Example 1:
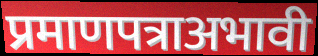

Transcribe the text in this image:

प्रमाणपत्राअभावी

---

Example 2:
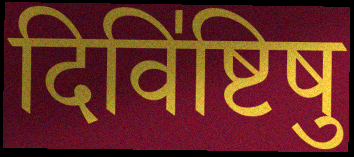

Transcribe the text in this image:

दिवि॑ष्टिषु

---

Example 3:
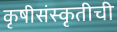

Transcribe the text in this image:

कृषीसंस्कृतीची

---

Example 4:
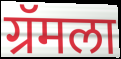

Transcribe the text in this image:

ग्रॅमला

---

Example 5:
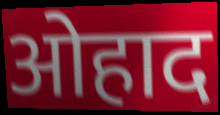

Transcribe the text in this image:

ओहाद